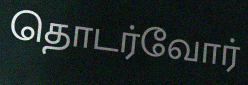
தொடர்வோர்